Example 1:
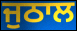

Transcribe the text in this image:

ਜੁਠਾਲ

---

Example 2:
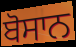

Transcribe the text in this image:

ਬੋਸਾਨ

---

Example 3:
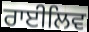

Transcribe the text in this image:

ਰਾਈਲਿਵ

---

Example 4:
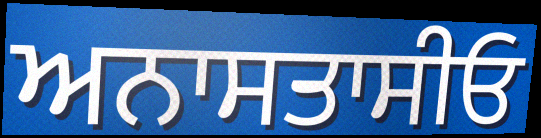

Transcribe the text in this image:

ਅਨਾਸਤਾਸੀਓ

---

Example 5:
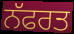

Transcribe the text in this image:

ਨੱਫਰਤ